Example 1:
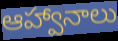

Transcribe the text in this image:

ఆహ్వానాలు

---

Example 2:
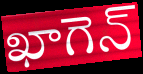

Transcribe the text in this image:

ఖాగెన్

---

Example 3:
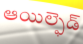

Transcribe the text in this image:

ఆయిల్ఫెడ్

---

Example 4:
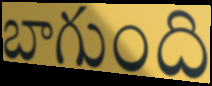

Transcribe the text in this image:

బాగుంది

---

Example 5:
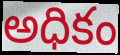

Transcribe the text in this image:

అధికం